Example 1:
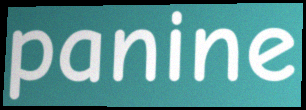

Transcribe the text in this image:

panine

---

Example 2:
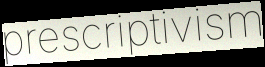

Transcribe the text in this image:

prescriptivism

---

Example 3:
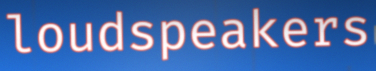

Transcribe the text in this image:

loudspeakers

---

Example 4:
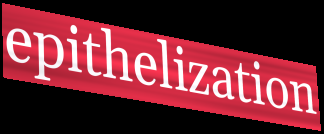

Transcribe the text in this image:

epithelization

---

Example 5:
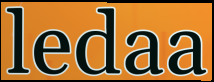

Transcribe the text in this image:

ledaa